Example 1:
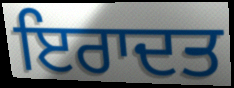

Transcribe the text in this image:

ਇਰਾਦਤ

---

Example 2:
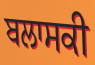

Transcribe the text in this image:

ਬਲਾਸਕੀ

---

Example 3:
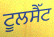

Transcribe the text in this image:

ਟੂਲਸੈੱਟ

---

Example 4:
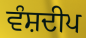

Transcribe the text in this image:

ਵੰਸ਼ਦੀਪ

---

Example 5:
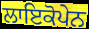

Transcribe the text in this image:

ਲਾਇਕੋਪੇਨ